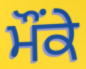
ਮੌੰਕੇ